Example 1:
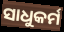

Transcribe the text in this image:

ସାଧୁକର୍ମ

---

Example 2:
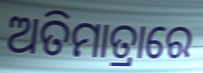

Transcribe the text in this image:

ଅତିମାତ୍ରାରେ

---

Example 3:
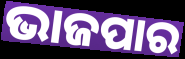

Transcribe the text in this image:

ଭାଜପାର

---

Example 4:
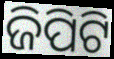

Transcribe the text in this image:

ଜିପିଟି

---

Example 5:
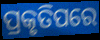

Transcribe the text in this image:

ପ୍ରକୃତିପରେ